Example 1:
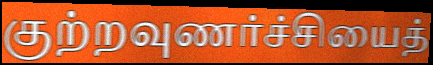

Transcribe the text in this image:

குற்றவுணர்ச்சியைத்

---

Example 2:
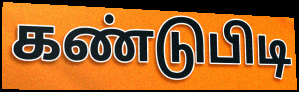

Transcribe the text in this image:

கண்டுபிடி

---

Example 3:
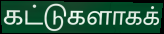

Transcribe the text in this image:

கட்டுகளாகக்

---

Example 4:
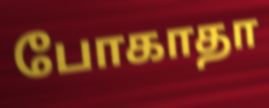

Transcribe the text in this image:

போகாதா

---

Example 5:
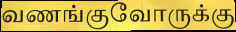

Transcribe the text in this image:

வணங்குவோருக்கு